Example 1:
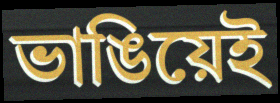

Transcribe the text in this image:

ভাঙিয়েই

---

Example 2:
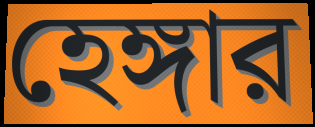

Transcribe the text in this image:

হেঙ্গার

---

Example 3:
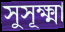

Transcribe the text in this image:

সুসূক্ষ্মা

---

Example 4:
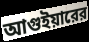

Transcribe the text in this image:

আগুইয়ারের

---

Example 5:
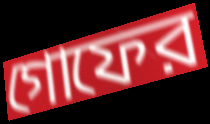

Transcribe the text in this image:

গোফের